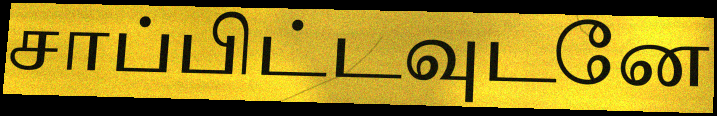
சாப்பிட்டவுடனே